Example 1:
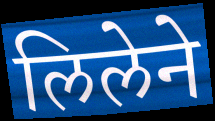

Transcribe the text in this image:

लिलेने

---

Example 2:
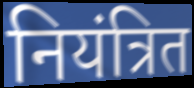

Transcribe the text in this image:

नियंत्रित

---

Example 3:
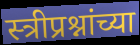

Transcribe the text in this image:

स्त्रीप्रश्नांच्या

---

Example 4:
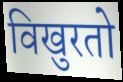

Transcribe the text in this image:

विखुरतो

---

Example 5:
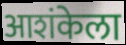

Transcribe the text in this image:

आशंकेला